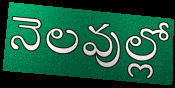
నెలవుల్లో